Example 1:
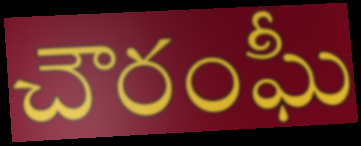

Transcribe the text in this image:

చౌరంఘీ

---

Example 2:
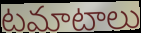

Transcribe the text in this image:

టమాటాలు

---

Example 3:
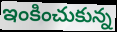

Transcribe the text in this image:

ఇంకించుకున్న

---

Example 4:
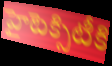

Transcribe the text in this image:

హైటెక్సిటీకి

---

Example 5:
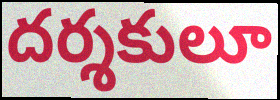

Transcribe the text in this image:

దర్శకులూ